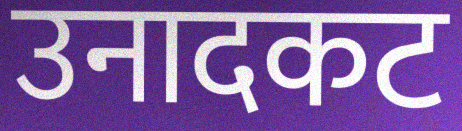
उनादकट